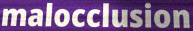
malocclusion